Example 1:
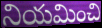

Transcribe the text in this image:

నియమించి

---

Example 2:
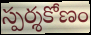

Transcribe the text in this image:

స్పర్శకోణం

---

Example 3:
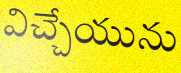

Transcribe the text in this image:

విచ్చేయును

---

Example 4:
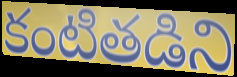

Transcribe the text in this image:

కంటితడిని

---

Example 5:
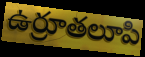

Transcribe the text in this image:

ఉర్రూతలూపి